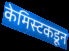
केमिस्टकडून